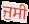
ਜੁਸੀ